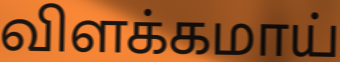
விளக்கமாய்